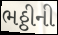
ભઠ્ઠીની